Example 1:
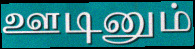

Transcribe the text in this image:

ஊடினும்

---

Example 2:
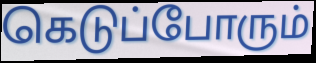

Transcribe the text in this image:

கெடுப்போரும்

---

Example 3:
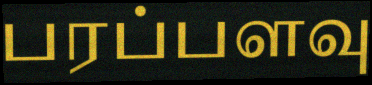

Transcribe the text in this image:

பரப்பளவு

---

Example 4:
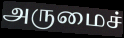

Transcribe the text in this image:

அருமைச்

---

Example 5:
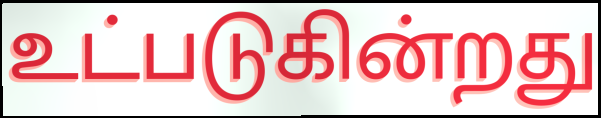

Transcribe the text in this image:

உட்படுகின்றது